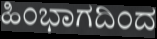
ಹಿಂಭಾಗದಿಂದ